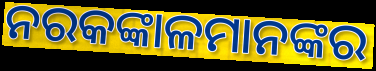
ନରକଙ୍କାଳମାନଙ୍କର